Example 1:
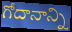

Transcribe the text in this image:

గోదానాన్ని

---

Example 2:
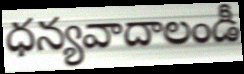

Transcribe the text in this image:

ధన్యవాదాలండీ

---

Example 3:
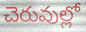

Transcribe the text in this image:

చెరువుల్లో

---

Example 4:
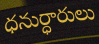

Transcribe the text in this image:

ధనుర్ధారులు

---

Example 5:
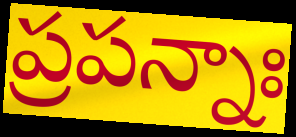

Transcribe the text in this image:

ప్రపన్నాః